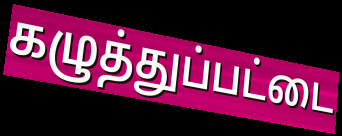
கழுத்துப்பட்டை